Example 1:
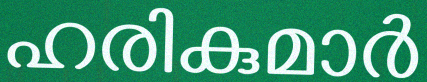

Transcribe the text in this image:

ഹരികുമാർ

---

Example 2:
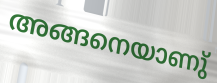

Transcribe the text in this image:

അങ്ങനെയാണു്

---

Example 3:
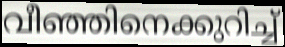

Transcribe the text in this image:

വീഞ്ഞിനെക്കുറിച്ച്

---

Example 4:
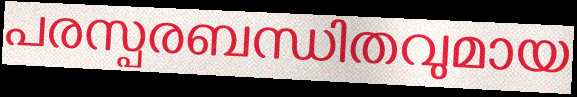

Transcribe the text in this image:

പരസ്പരബന്ധിതവുമായ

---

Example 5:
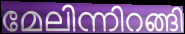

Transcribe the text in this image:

മേലിന്നിറങ്ങി